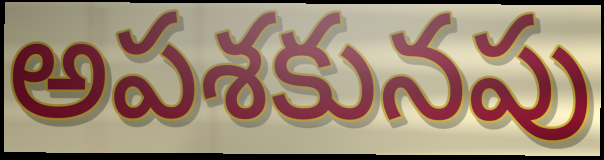
అపశకునపు